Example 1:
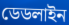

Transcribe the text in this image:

ডেডলাইন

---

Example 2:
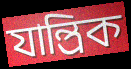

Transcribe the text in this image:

যান্ত্রিক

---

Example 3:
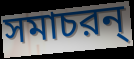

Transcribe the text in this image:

সমাচরন্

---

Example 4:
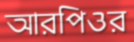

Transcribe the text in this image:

আরপিওর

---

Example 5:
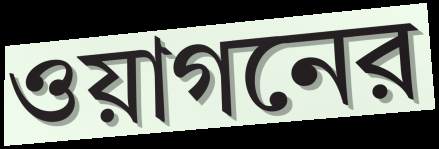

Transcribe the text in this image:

ওয়াগনের